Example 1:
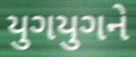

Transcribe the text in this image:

યુગયુગને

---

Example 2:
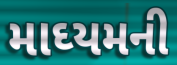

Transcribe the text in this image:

માઘ્યમની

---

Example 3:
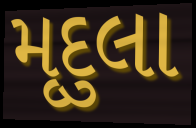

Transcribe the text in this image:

મૃદુલા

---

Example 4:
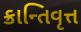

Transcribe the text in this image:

ક્રાન્તિવૃત્ત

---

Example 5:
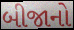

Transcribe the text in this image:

બીજાનો